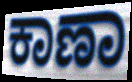
ಕಾಣಾ